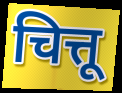
चित्तू